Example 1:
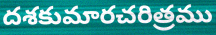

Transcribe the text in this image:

దశకుమారచరిత్రము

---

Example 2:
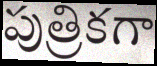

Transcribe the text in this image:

పుత్రికగా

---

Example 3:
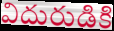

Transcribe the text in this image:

విదురుడికి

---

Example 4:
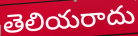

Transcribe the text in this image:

తెలియరాదు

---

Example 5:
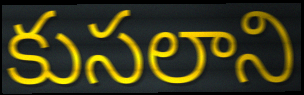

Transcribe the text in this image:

కుసలాని